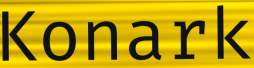
Konark